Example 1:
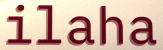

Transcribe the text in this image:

ilaha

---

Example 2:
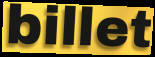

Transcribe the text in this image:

billet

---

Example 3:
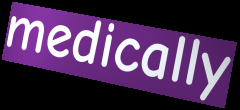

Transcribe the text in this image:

medically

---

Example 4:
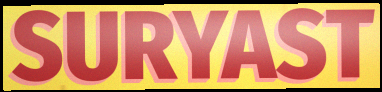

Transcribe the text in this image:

SURYAST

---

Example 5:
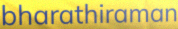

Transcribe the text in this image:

bharathiraman